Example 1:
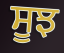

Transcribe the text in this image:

ਸੂਝ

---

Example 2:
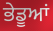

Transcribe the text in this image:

ਭੇਡੂਆਂ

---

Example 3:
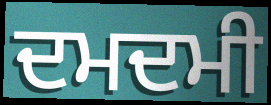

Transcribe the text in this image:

ਦਮਦਮੀ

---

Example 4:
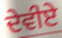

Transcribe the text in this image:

ਦੇਵੀਏ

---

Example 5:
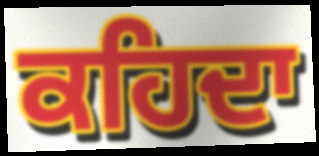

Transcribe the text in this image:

ਕਹਿਦਾ